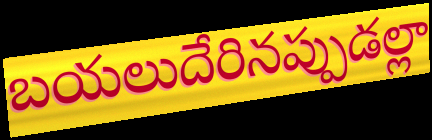
బయలుదేరినప్పుడల్లా